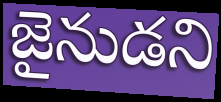
జైనుడని